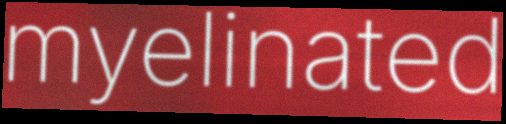
myelinated